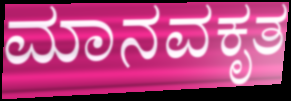
ಮಾನವಕೃತ